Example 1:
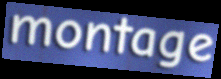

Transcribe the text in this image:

montage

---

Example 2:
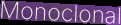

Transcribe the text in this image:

Monoclonal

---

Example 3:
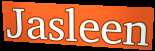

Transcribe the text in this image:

Jasleen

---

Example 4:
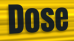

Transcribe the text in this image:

Dose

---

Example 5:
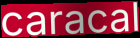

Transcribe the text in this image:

caracal